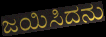
ಜಯಿಸಿದನು